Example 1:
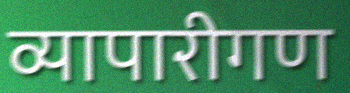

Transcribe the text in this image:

व्यापारीगण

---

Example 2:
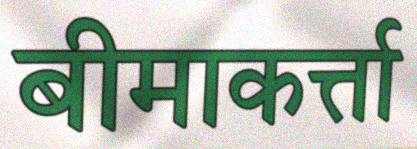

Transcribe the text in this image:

बीमाकर्त्ता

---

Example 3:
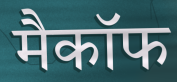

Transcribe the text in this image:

मैकॉफ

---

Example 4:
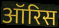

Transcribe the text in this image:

ऑरिस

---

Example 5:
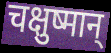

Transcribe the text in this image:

चक्षुष्मान्